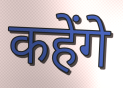
कहेंगे